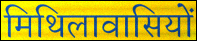
मिथिलावासियों